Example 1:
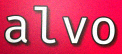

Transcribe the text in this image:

alvo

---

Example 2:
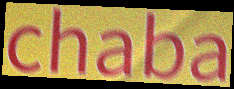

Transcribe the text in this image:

chaba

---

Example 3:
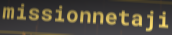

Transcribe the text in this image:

missionnetaji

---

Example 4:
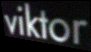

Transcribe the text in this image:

viktor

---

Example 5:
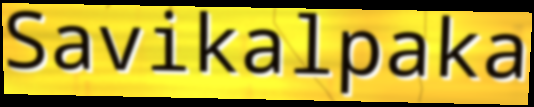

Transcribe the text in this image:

Savikalpaka